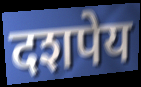
दशपेय